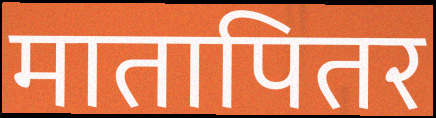
मातापितर